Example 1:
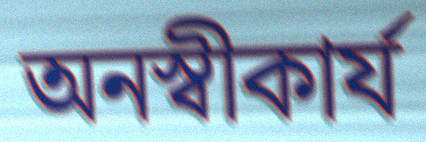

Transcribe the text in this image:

অনস্বীকার্য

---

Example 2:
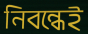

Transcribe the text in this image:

নিবন্ধেই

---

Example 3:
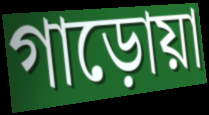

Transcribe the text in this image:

গাড়োয়া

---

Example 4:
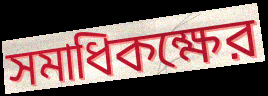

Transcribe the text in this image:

সমাধিকক্ষের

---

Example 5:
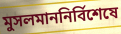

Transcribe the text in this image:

মুসলমাননির্বিশেষে